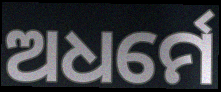
ଅଧର୍ମେ